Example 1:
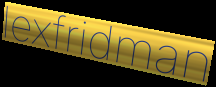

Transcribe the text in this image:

lexfridman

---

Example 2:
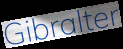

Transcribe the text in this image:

Gibralter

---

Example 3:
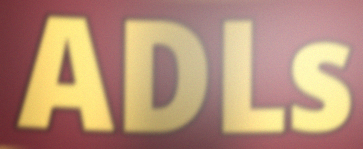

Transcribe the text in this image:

ADLs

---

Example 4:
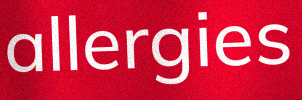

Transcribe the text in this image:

allergies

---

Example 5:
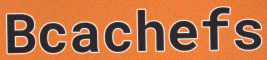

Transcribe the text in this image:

Bcachefs